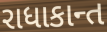
રાધાકાન્ત